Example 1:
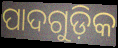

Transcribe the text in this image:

ପାଦଗୁଡ଼ିକ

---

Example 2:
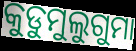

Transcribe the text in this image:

କୁଡୁମୁଲୁଗୁମା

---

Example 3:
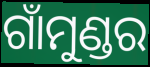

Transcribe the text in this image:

ଗାଁମୁଣ୍ଡର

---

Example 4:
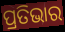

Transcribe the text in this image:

ପ୍ରତିଭାର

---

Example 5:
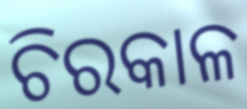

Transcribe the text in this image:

ଚିରକାଳ